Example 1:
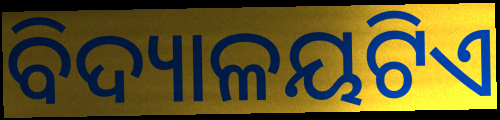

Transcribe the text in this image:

ବିଦ୍ୟାଳୟଟିଏ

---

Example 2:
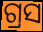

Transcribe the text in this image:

ଗ୍ରସ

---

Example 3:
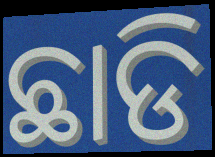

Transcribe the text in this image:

ଛାଡି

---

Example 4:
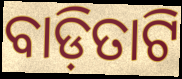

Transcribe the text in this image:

ବାଡ଼ିତାଟି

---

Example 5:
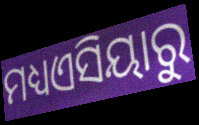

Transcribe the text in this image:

ମଧ୍ୟଏସିୟାରୁ